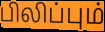
பிலிப்பும்